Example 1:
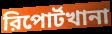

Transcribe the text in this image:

রিপোর্টখানা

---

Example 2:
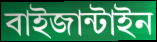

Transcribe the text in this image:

বাইজান্টাইন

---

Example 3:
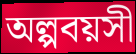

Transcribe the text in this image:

অল্পবয়সী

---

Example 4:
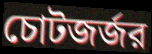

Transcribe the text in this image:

চোটজর্জর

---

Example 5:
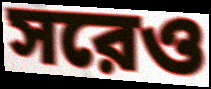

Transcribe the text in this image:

সরেও